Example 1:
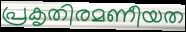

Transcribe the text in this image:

പ്രകൃതിരമണീയത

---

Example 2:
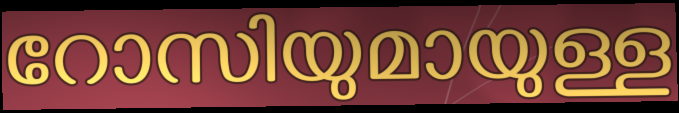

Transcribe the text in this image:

റോസിയുമായുള്ള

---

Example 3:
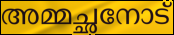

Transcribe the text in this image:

അമ്മച്ഛനോട്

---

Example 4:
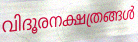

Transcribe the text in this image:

വിദൂരനക്ഷത്രങ്ങൾ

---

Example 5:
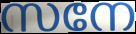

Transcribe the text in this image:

സനേ